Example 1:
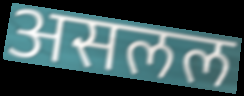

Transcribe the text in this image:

असलल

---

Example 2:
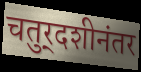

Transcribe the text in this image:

चतुर्दशीनंतर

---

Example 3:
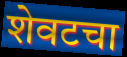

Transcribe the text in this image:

शेवटचा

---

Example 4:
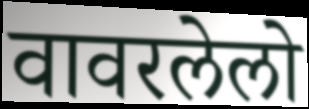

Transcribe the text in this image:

वावरलेलो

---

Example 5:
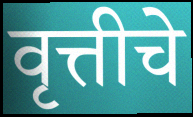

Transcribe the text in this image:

वृत्तीचे